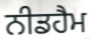
ਨੀਡਹੈਮ